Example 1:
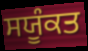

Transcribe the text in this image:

ਸਯੂੰਕਤ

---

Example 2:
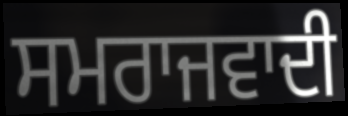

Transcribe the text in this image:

ਸਮਰਾਜਵਾਦੀ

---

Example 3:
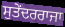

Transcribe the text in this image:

ਸੁਤੇਂਦਰਰਾਜਾ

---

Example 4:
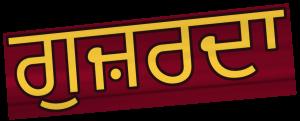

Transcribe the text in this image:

ਗੁਜ਼ਰਦਾ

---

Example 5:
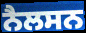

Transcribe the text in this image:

ਨੈਲਸਨ